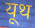
यूथ